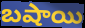
బషాయి